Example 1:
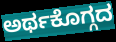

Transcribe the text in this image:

ಅರ್ಥಕೊಗ್ಗದ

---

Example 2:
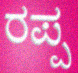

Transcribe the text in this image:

ರಪ್ಪ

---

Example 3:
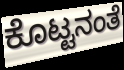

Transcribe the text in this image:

ಕೊಟ್ಟನಂತೆ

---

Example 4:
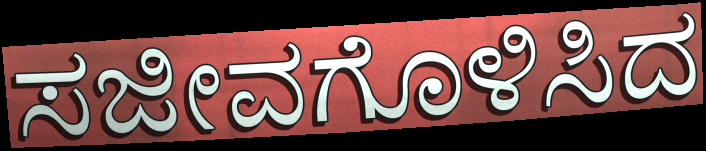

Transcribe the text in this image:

ಸಜೀವಗೊಳಿಸಿದ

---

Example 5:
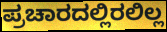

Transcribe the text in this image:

ಪ್ರಚಾರದಲ್ಲಿರಲಿಲ್ಲ